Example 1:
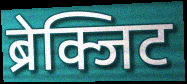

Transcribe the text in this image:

ब्रेक्जिट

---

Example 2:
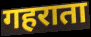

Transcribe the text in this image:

गहराता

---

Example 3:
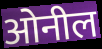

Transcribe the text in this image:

ओनील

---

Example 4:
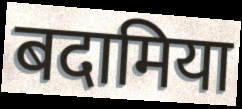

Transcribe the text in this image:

बदामिया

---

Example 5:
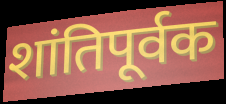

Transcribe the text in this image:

शांतिपूर्वक